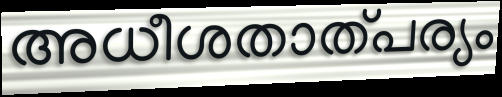
അധീശതാത്പര്യം